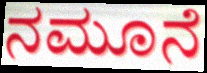
ನಮೂನೆ